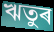
ঋতুৰ